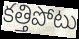
కత్తిపోటు